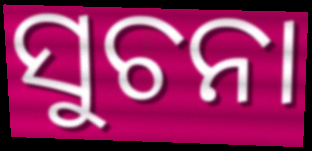
ସୁଚନା